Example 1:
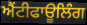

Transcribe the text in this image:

ਐਂਟੀਫਾਊਲਿੰਗ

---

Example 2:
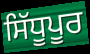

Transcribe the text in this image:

ਸਿੱਧੂਪੂਰ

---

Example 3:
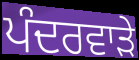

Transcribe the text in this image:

ਪੰਦਰਵਾੜੇ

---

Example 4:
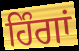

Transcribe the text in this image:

ਹਿੰਗਾਂ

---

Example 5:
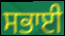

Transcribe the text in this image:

ਸਭਾਈ